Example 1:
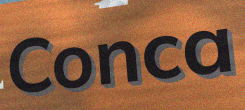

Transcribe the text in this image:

Conca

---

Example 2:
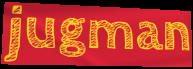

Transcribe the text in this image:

jugman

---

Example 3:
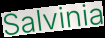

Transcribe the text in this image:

Salvinia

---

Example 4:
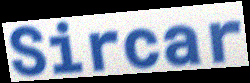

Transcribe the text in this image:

Sircar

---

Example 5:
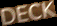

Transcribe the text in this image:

DECK